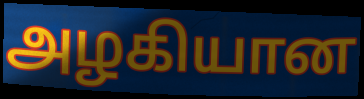
அழகியான